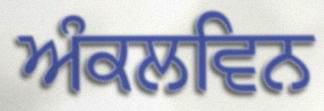
ਅੰਕਲਵਿਨ